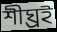
শীঘ্ৰই